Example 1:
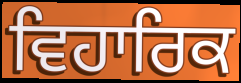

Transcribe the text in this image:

ਵਿਹਾਰਿਕ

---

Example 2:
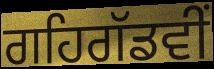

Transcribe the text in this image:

ਗਹਿਗੱਡਵੀਂ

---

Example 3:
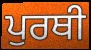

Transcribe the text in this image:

ਪੁਰਥੀ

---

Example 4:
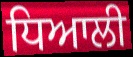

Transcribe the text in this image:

ਧਿਆਲੀ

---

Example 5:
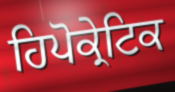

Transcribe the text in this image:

ਹਿਪੋਕ੍ਰੇਟਿਕ